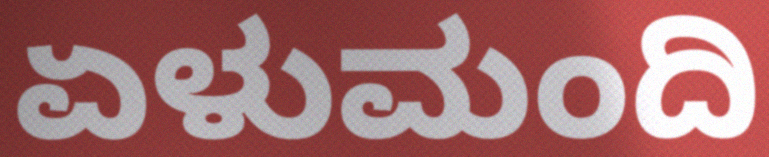
ಏಳುಮಂದಿ